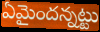
ఏమైందన్నట్టు